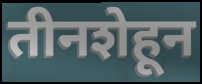
तीनशेहून